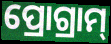
ପ୍ରୋଗ୍ରାମ୍